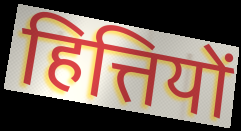
हित्तियों